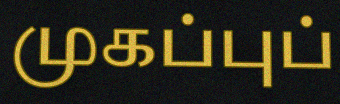
முகப்புப்